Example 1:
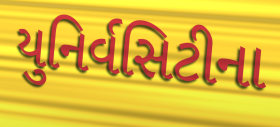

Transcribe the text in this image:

યુનિર્વસિટીના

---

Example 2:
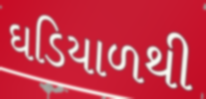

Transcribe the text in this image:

ઘડિયાળથી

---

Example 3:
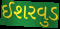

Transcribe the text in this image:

ઈશરવુડ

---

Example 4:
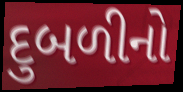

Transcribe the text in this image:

દુબળીનો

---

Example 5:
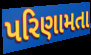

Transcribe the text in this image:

પરિણામતા